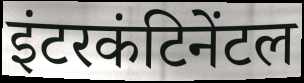
इंटरकंटिनेंटल